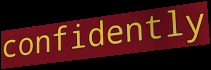
confidently